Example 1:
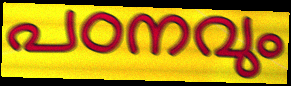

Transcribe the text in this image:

പഠനവും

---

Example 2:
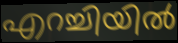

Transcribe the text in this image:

എറച്ചിയിൽ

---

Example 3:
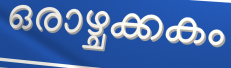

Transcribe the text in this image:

ഒരാഴ്ചക്കകം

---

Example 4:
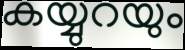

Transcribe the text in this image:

കയ്യുറയും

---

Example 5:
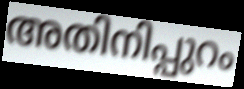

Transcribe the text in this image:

അതിനിപ്പുറം